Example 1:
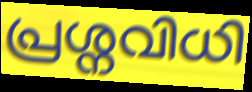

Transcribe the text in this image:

പ്രശ്നവിധി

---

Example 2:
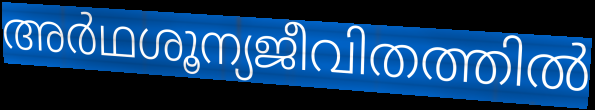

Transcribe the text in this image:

അർഥശൂന്യജീവിതത്തിൽ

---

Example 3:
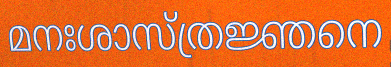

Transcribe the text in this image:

മനഃശാസ്ത്രജ്ഞനെ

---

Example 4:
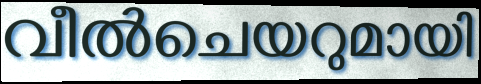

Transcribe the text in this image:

വീൽചെയറുമായി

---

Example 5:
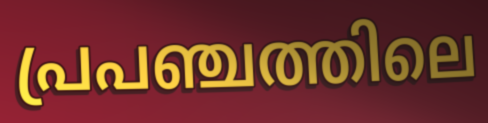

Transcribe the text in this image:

പ്രപഞ്ചത്തിലെ